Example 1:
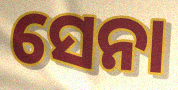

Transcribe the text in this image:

ସେନା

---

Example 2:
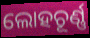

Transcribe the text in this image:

ଲୋହଚୂର୍ଣ୍ଣ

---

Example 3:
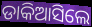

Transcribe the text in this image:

ଡାକିଆସିଲେ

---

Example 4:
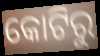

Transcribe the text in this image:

କୋଟିରୁ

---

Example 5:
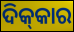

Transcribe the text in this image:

ଦିକ୍‌କାର